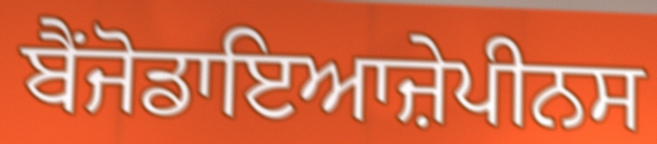
ਬੈਂਜੋਡਾਇਆਜ਼ੇਪੀਨਸ